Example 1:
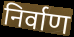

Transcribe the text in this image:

निर्वाण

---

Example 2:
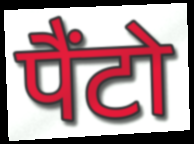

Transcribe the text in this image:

पैंटो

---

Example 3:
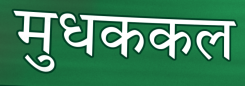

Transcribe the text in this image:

मुधककल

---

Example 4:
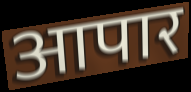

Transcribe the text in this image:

आपार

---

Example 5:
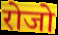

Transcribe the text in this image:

रोजो